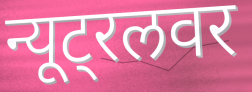
न्यूट्रलवर